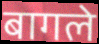
बागले